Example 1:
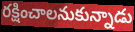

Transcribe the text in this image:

రక్షించాలనుకున్నాడు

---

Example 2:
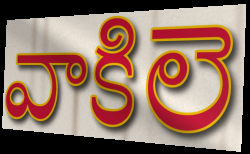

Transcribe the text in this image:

వాకిలె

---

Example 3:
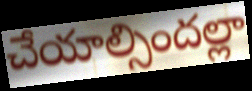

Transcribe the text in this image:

చేయాల్సిందల్లా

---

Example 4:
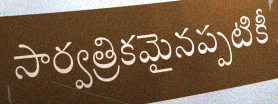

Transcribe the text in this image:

సార్వత్రికమైనప్పటికీ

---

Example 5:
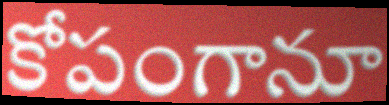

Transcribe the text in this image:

కోపంగానూ